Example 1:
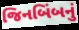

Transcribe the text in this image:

જિનબિંબનું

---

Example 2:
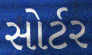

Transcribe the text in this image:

સોર્ટર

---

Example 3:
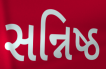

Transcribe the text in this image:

સન્નિષ્ઠ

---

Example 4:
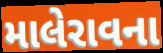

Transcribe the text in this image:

માલેરાવના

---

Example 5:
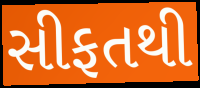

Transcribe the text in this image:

સીફતથી